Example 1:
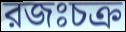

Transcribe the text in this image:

রজঃচক্র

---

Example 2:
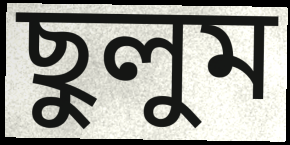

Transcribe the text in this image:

ছুলুম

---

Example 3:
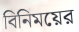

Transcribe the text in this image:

বিনিময়ের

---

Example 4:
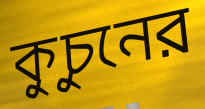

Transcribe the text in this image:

কুচুনের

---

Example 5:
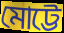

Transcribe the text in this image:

মোট্টে